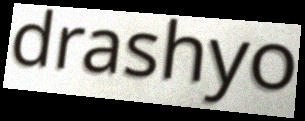
drashyo